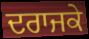
ਦਰਾਜਕੇ